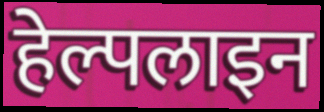
हेल्पलाइन